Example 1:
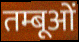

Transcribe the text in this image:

तम्बूओं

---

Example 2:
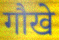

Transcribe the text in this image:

गौखे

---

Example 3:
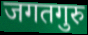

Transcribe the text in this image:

जगतगुरु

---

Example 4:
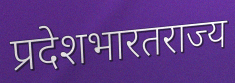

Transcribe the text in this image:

प्रदेशभारतराज्य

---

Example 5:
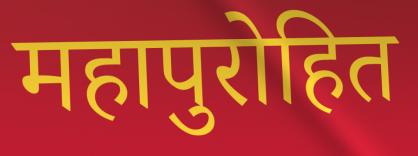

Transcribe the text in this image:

महापुरोहित